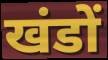
खंडों